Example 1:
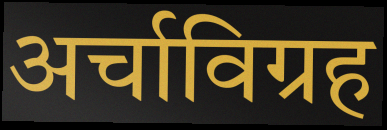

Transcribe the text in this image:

अर्चाविग्रह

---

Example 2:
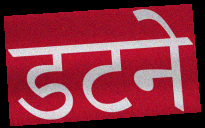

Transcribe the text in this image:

डटने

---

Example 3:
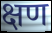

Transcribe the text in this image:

क्षण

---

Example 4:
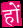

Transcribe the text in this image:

हों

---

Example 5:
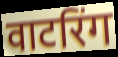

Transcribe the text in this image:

वाटरिंग